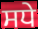
ਸਧੇ